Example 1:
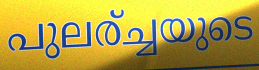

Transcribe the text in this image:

പുലര്ച്ചയുടെ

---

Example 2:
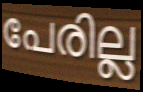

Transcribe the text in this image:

പേരില്ല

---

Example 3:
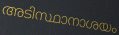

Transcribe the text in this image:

അടിസ്ഥാനാശയം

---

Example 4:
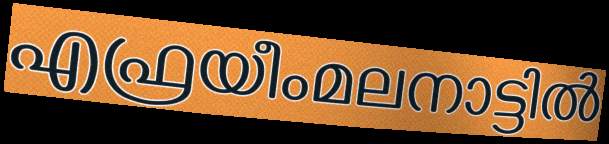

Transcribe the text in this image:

എഫ്രയീംമലനാട്ടിൽ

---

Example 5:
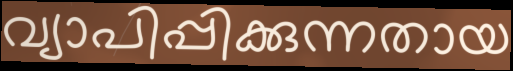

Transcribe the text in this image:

വ്യാപിപ്പിക്കുന്നതായ